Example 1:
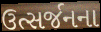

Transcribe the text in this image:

ઉત્સર્જનના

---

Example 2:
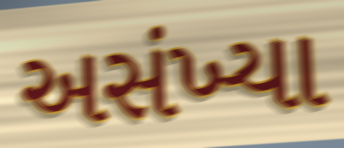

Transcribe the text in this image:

અસંખ્યા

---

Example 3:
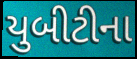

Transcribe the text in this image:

યુબીટીના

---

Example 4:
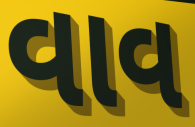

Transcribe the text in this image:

વાવ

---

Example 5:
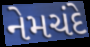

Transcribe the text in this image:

નેમચંદે